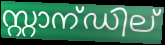
സ്റ്റാന്ഡില്